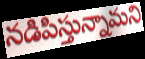
నడిపిస్తున్నామని